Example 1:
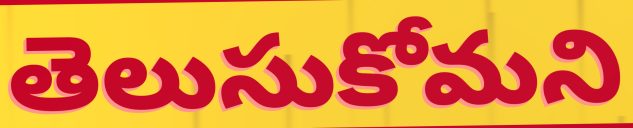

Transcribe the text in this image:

తెలుసుకోమని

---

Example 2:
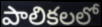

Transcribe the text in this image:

పాలికలలో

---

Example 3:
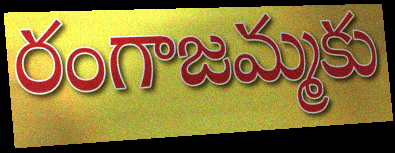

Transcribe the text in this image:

రంగాజమ్మకు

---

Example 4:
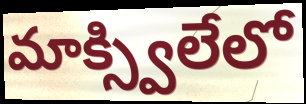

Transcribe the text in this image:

మాక్స్విలేలో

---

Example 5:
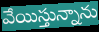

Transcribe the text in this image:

వేయిస్తున్నాను